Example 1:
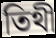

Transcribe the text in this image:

তিথী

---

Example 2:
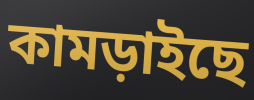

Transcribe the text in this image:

কামড়াইছে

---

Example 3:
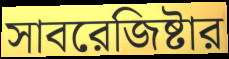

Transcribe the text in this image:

সাবরেজিষ্টার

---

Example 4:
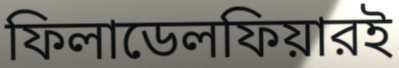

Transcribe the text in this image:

ফিলাডেলফিয়ারই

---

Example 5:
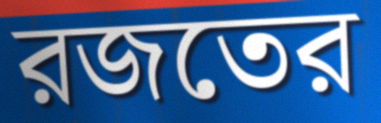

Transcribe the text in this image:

রজতের